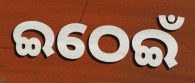
ଇଠେଇଁ